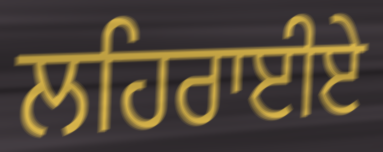
ਲਹਿਰਾਈਏ